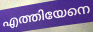
എത്തിയേനെ